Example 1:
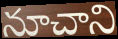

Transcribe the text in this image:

నూచాని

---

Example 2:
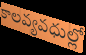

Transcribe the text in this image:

కాలవ్యవధుల్లో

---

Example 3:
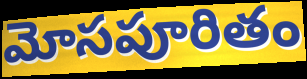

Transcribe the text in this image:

మోసపూరితం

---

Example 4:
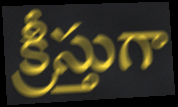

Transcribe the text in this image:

క్రీస్తుగా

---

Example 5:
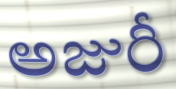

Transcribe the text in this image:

అజురీ